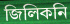
জিলিকনি